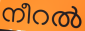
നീറൽ